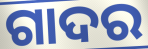
ଗାଦର